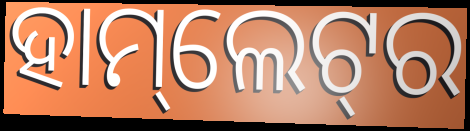
ହାମ୍‌ଲେଟ୍‌ର